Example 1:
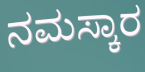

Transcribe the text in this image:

ನಮಸ್ಕಾರ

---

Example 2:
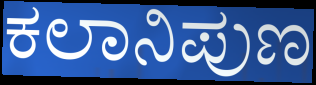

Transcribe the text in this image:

ಕಲಾನಿಪುಣ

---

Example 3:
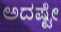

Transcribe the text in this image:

ಅದಷ್ಟೇ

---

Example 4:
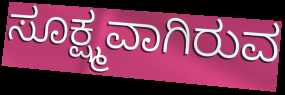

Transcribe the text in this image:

ಸೂಕ್ಷ್ಮವಾಗಿರುವ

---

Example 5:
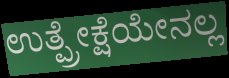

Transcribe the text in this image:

ಉತ್ಪ್ರೇಕ್ಷೆಯೇನಲ್ಲ